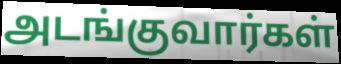
அடங்குவார்கள்